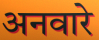
अनवारे